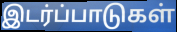
இடர்ப்பாடுகள்